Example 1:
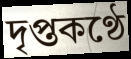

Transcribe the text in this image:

দৃপ্তকণ্ঠে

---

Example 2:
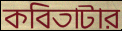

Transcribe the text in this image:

কবিতাটার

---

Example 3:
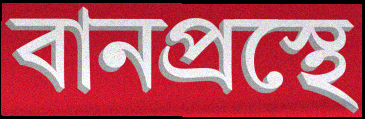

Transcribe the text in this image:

বানপ্রস্থে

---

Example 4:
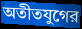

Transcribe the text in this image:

অতীতযুগের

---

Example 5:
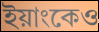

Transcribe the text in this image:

ইয়াংকেও